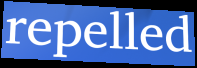
repelled